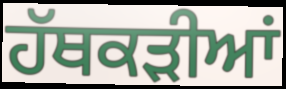
ਹੱਥਕੜੀਆਂ